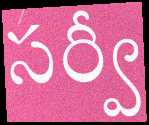
సర్వీ